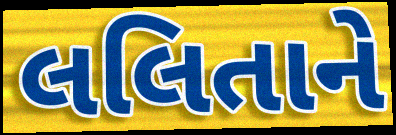
લલિતાને